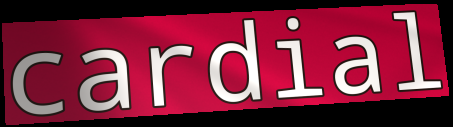
cardial